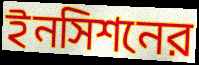
ইনসিশনের